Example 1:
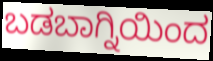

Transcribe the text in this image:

ಬಡಬಾಗ್ನಿಯಿಂದ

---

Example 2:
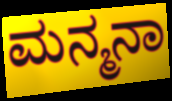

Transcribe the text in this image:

ಮನ್ಮನಾ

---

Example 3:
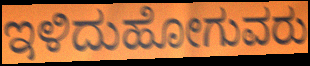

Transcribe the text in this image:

ಇಳಿದುಹೋಗುವರು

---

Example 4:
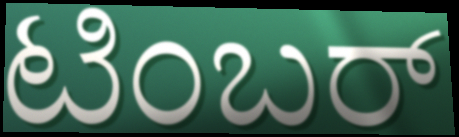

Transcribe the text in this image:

ಟಿಂಬರ್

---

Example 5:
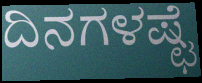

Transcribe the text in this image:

ದಿನಗಳಷ್ಟೆ